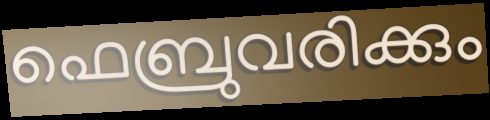
ഫെബ്രുവരിക്കും